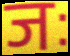
जः